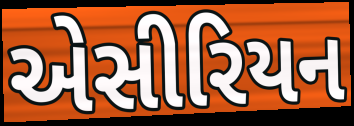
એસીરિયન